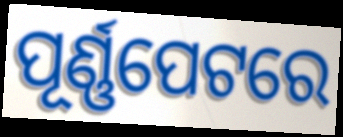
ପୂର୍ଣ୍ଣପେଟରେ